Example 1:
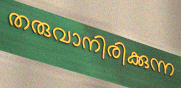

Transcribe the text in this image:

തരുവാനിരിക്കുന്ന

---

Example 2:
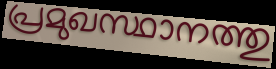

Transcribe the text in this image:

പ്രമുഖസ്ഥാനത്തു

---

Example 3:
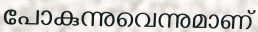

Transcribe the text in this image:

പോകുന്നുവെന്നുമാണ്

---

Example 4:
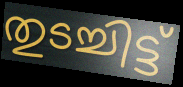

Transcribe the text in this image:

തുടച്ചിട്ട്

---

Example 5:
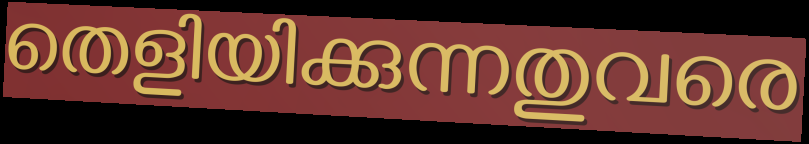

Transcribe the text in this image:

തെളിയിക്കുന്നതുവരെ